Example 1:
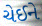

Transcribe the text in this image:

ચેઈને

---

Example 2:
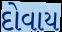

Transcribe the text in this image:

દોવાય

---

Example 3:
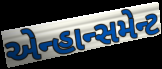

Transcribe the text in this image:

એન્હાન્સમેન્ટ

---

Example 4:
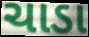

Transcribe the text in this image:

ચાડા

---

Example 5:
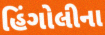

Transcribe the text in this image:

હિંગોલીના